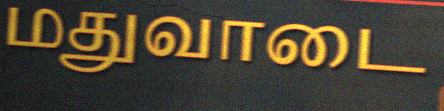
மதுவாடை